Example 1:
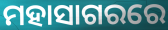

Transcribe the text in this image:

ମହାସାଗରରେ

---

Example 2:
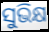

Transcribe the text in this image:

ସୁଭିକ୍ଷ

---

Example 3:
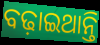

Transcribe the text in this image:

ବଢ଼ାଇଥାନ୍ତି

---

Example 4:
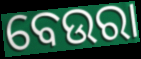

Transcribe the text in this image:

ବେଉରା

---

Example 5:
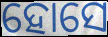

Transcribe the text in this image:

ହୋସେ